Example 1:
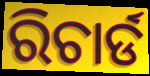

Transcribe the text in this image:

ରିଚାର୍ଡ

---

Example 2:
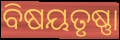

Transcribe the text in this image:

ବିଷୟତୃଷ୍ଣା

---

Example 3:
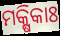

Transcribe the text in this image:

ମକ୍ଷିକାଃ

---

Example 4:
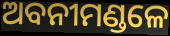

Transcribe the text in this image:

ଅବନୀମଣ୍ଡଳେ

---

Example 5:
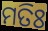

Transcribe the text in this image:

ମତିଃ